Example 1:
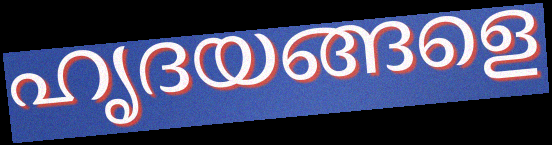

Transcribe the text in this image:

ഹൃദയങ്ങളെ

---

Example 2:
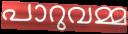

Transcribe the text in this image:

പാറുവമ്മ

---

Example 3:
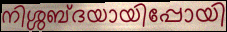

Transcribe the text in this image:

നിശ്ശബ്ദയായിപ്പോയി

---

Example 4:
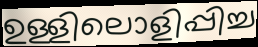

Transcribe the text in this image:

ഉള്ളിലൊളിപ്പിച്ച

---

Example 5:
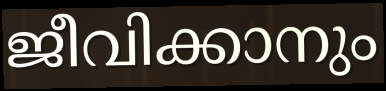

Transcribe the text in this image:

ജീവിക്കാനും